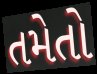
તમેતો